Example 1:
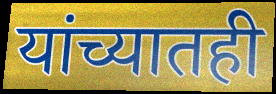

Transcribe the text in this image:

यांच्यातही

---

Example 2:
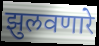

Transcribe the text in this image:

झुलवणारे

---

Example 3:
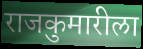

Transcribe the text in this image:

राजकुमारीला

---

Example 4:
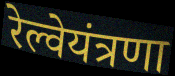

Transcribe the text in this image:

रेल्वेयंत्रणा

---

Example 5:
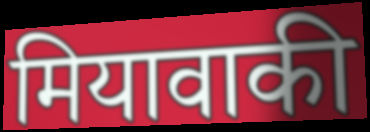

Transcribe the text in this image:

मियावाकी